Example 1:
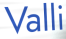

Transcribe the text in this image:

Valli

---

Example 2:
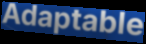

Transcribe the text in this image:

Adaptable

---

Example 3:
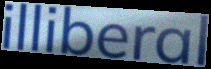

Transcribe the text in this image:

illiberal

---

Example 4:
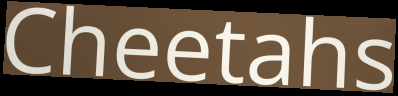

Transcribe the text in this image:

Cheetahs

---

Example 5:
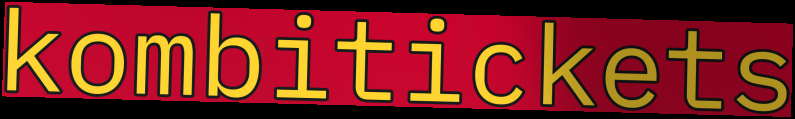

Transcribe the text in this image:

kombitickets